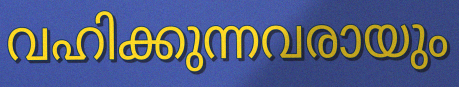
വഹിക്കുന്നവരായും